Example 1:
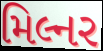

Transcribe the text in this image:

મિલ્નર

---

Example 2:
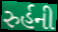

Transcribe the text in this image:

રુર્હની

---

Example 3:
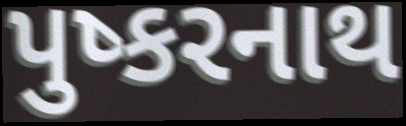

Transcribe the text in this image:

પુષ્કરનાથ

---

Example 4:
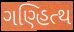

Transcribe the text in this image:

ગણ્હિત્થ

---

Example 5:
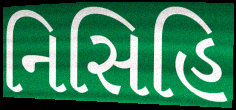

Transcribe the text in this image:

નિસિહિ